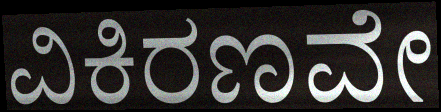
ವಿಕಿರಣವೇ